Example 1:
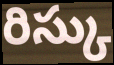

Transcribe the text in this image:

రిస్కు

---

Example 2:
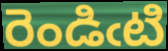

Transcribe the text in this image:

రెండిఁటి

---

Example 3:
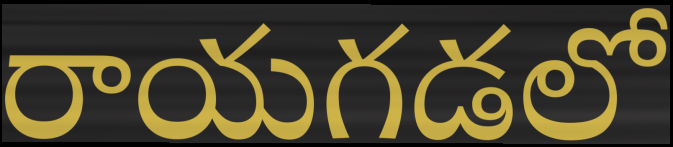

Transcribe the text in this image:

రాయగడలో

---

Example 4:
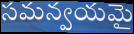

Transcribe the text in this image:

సమన్వయమై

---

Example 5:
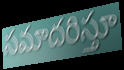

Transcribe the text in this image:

సమాదరిస్తూ